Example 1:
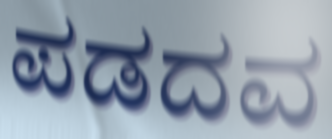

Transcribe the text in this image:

ಪಡದವ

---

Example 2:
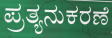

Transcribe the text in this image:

ಪ್ರತ್ಯನುಕರಣೆ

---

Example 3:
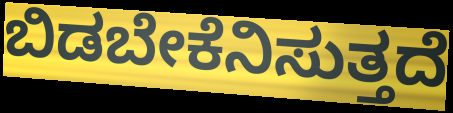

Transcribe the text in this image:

ಬಿಡಬೇಕೆನಿಸುತ್ತದೆ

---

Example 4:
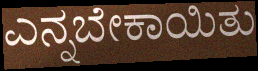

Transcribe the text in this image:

ಎನ್ನಬೇಕಾಯಿತು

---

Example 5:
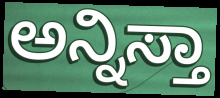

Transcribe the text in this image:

ಅನ್ನಿಸ್ತಾ